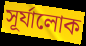
সূর্যালোক